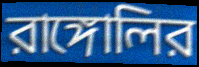
রাঙ্গোলির